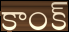
కాంక్